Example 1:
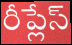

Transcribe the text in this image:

రీప్లేస్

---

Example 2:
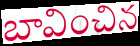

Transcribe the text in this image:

బావించిన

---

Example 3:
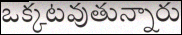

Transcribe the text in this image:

ఒక్కటవుతున్నారు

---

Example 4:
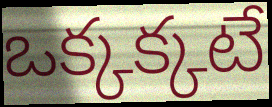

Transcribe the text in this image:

ఒక్కక్కటే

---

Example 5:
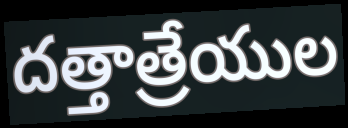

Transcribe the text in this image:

దత్తాత్రేయుల